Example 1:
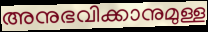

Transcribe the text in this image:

അനുഭവിക്കാനുമുള്ള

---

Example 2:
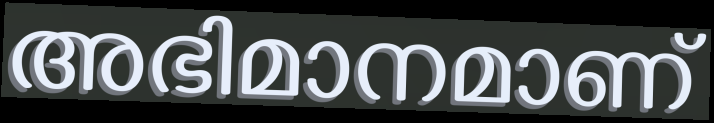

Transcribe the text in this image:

അഭിമാനമാണ്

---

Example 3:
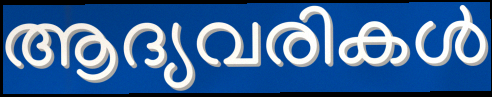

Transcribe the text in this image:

ആദ്യവരികൾ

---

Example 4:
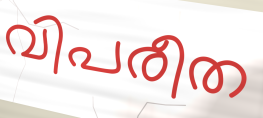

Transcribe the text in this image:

വിപരീത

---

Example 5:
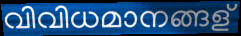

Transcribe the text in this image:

വിവിധമാനങ്ങള്